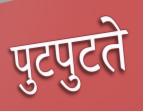
पुटपुटते